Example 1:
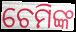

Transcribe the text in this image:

ଚେମିଙ୍କ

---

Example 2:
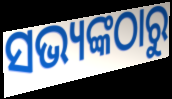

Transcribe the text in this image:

ସଭ୍ୟଙ୍କଠାରୁ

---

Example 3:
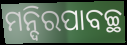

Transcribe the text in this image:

ମନ୍ଦିରପାବଚ୍ଛ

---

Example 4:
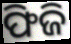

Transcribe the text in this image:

ଫିଜି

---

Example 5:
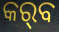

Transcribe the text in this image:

କର୍‌ବ